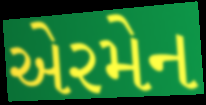
એરમેન